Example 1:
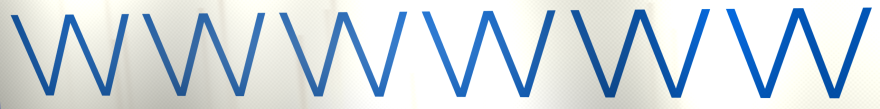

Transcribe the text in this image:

wwwwww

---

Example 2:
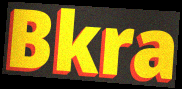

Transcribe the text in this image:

Bkra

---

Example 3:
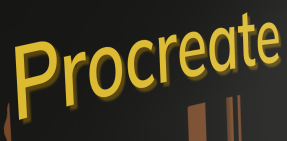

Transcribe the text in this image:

Procreate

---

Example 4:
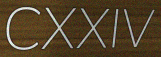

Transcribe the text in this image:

CXXIV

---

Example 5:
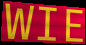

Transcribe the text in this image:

WIE